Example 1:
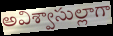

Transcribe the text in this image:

అవిశ్వాసుల్లాగా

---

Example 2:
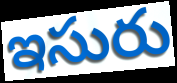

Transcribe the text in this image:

ఇసురు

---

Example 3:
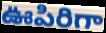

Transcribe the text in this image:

ఊపిరిగా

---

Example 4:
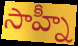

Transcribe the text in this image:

సాహ్నీ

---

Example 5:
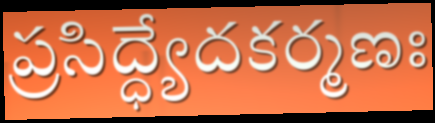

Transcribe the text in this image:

ప్రసిద్ధ్యేదకర్మణః